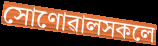
সোণোৱালসকলে